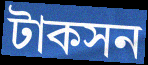
টাকসন